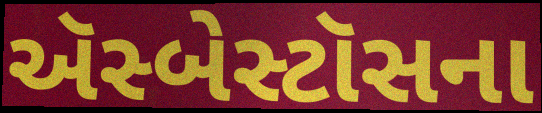
ઍસ્બેસ્ટૉસના